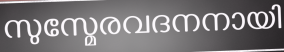
സുസ്മേരവദനനായി